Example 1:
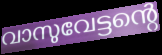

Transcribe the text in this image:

വാസുവേട്ടന്റെ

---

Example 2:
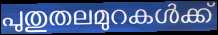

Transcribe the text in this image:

പുതുതലമുറകൾക്ക്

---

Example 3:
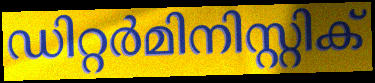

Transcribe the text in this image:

ഡിറ്റർമിനിസ്റ്റിക്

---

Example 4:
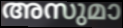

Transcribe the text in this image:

അസുമാ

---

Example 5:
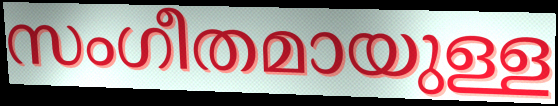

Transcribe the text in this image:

സംഗീതമായുള്ള